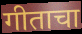
गीताचा